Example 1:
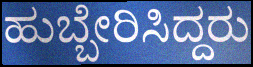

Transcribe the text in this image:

ಹುಬ್ಬೇರಿಸಿದ್ದರು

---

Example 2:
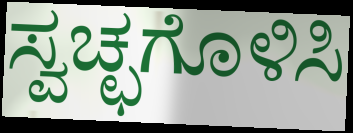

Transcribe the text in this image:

ಸ್ವಚ್ಛಗೊಳಿಸಿ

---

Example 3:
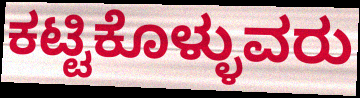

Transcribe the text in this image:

ಕಟ್ಟಿಕೊಳ್ಳುವರು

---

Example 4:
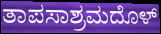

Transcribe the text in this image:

ತಾಪಸಾಶ್ರಮದೊಳ್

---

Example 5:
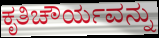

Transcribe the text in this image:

ಕೃತಿಚೌರ್ಯವನ್ನು